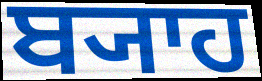
ਬ੍ਯਾਹ